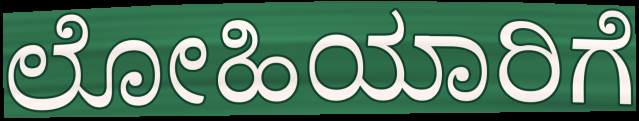
ಲೋಹಿಯಾರಿಗೆ